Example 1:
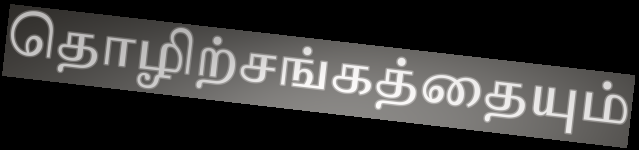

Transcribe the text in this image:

தொழிற்சங்கத்தையும்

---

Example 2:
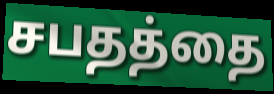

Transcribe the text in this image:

சபதத்தை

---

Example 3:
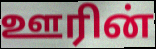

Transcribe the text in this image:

ஊரின்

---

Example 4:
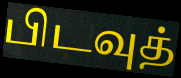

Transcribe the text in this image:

பிடவுத்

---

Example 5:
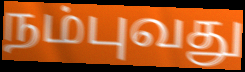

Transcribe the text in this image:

நம்புவது